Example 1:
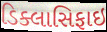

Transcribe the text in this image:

ડિક્લાસિફાઇ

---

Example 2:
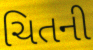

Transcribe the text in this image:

ચિતની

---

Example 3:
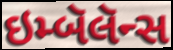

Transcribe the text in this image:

ઇમ્બૅલૅન્સ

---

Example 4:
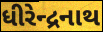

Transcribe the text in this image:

ધીરેન્દ્રનાથ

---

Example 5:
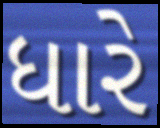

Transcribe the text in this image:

ધારે